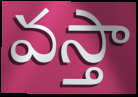
వస్తా